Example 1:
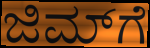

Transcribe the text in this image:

ಜಿಮ್‌ಗೆ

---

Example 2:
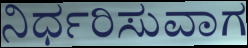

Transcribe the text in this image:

ನಿರ್ಧರಿಸುವಾಗ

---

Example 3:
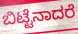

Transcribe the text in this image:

ಬಿಟ್ಟೆನಾದರೆ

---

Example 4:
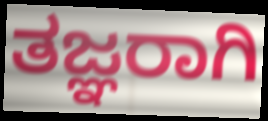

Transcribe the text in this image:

ತಜ್ಞರಾಗಿ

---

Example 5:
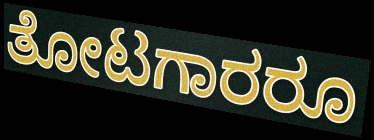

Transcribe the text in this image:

ತೋಟಗಾರರೂ